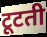
टूटती